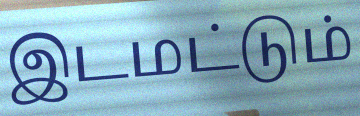
இடமட்டும்